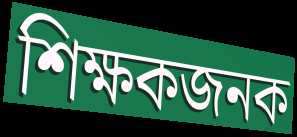
শিক্ষকজনক